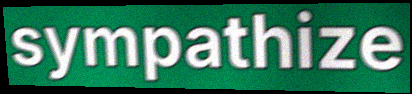
sympathize